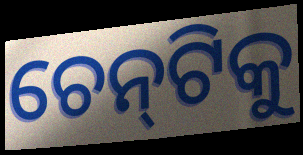
ଚେନ୍‌ଟିକୁ